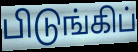
பிடுங்கிப்